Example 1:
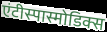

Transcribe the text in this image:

एंटीस्पास्मोडिक्स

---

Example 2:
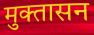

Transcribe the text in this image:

मुक्तासन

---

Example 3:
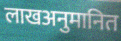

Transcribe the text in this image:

लाखअनुमानित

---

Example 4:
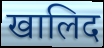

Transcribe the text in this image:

खालिद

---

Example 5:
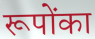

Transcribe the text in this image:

रूपोंका